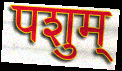
पशुम्